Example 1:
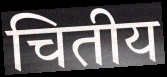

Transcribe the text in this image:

चितीय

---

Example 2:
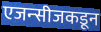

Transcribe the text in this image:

एजन्सीजकडून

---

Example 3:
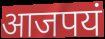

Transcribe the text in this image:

आजपयं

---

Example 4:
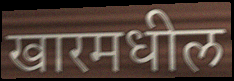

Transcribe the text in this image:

खारमधील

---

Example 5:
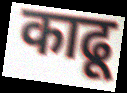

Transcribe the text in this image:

काढू